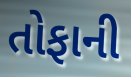
તોફાની